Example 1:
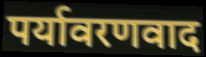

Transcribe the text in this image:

पर्यावरणवाद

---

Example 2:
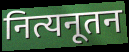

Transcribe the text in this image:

नित्यनूतन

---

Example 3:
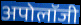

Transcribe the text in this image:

अपोलॉजी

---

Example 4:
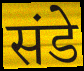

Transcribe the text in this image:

संडे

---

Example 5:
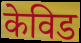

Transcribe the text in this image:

केविड